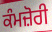
ਕੰਮਜ਼ੋਰੀ